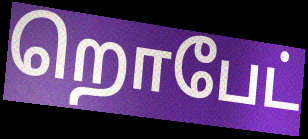
றொபேட்